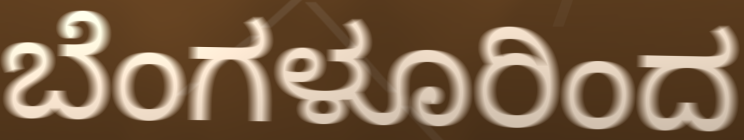
ಬೆಂಗಳೂರಿಂದ